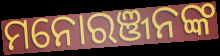
ମନୋରଞ୍ଜନଙ୍କ